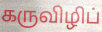
கருவிழிப்